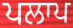
ਪਲਾਪ